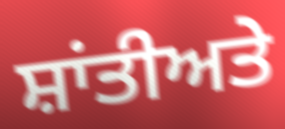
ਸ਼ਾਂਤੀਅਤੇ